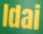
Idai